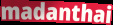
madanthai